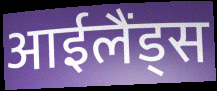
आईलैंड्स